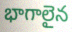
భాగాలైన